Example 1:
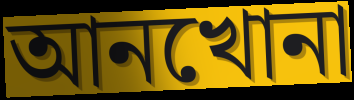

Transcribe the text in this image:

আনখোনা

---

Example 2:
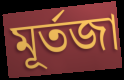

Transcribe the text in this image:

মূর্তজা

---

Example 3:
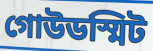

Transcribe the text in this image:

গোউডস্মিট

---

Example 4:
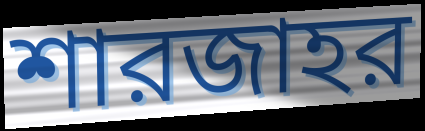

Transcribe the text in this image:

শারজাহর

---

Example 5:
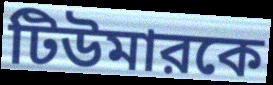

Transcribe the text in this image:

টিউমারকে